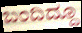
ಬಂದಿದ್ದೂ